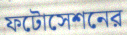
ফটোসেশনের